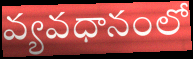
వ్యవధానంలో